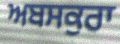
ਅਬਸਕੁਰਾ